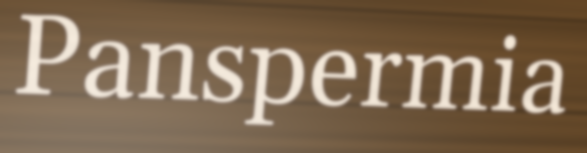
Panspermia